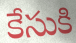
కేసుకి